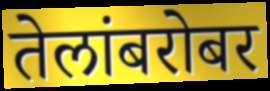
तेलांबरोबर